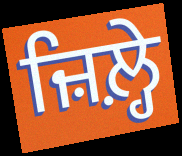
ਜ਼ਿਲ਼੍ਹੇ